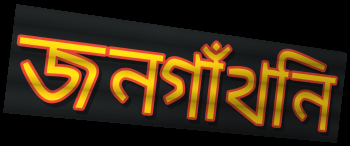
জনগাঁথনি